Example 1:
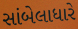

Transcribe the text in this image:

સાંબેલાધારે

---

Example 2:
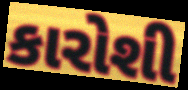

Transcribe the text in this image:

કારોશી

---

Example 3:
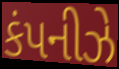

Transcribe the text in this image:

કંપનીઝે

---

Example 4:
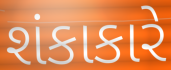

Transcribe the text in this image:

શંકાકારે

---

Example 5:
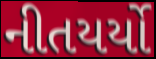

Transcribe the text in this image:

નીતયર્યો